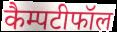
कैम्पटीफॉल